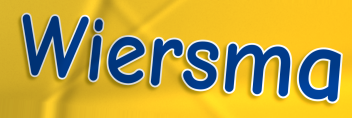
Wiersma